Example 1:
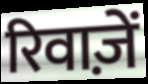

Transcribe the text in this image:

रिवाज़ें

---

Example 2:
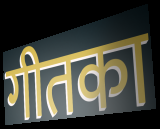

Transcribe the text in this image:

गीतका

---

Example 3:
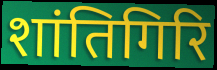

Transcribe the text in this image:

शांतिगिरि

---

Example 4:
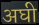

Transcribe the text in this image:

अघी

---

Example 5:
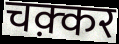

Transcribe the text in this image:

चक़्कर